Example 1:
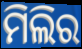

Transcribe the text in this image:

ମିଲିର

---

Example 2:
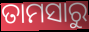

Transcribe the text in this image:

ତାମସାରୁ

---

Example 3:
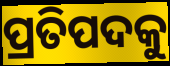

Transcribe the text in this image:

ପ୍ରତିପଦକୁ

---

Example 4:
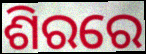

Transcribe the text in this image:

ଶିରରେ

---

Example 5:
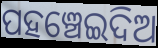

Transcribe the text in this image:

ପହଞ୍ଚେଇଦିଅ